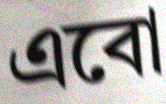
এবো